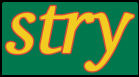
stry